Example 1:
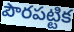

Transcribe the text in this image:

పౌరపట్టిక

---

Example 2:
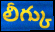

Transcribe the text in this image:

లీగ్కు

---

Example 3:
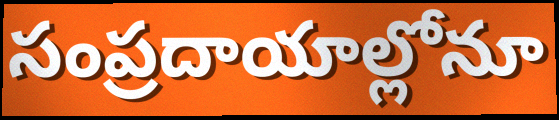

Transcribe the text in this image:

సంప్రదాయాల్లోనూ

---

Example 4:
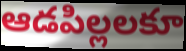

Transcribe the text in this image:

ఆడపిల్లలకూ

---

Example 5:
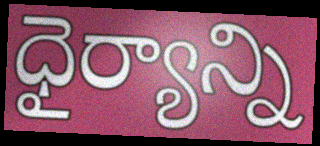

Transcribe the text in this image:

ధైర్యాన్ని